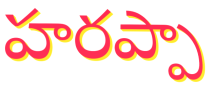
హరప్పా